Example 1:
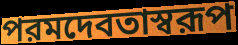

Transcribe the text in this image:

পরমদেবতাস্বরূপ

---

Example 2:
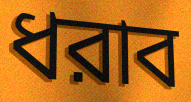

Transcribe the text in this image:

ধরাব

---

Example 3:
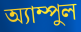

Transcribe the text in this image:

অ্যাম্পুল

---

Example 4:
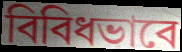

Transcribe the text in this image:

বিবিধভাবে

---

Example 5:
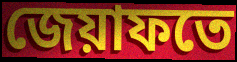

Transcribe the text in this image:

জেয়াফতে